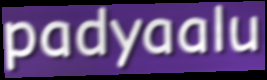
padyaalu